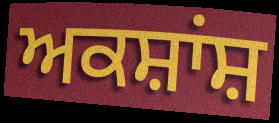
ਅਕਸ਼ਾਂਸ਼